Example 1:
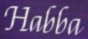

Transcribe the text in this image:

Habba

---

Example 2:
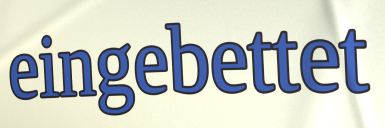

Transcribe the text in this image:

eingebettet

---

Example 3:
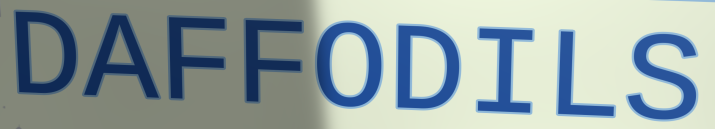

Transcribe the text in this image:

DAFFODILS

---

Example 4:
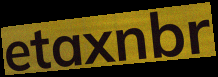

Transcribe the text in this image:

etaxnbr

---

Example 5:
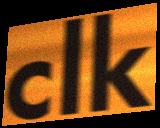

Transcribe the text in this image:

clk